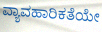
ವ್ಯಾವಹಾರಿಕತೆಯೇ